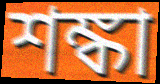
শঙ্কা